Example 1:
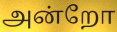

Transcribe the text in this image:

அன்றோ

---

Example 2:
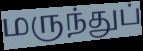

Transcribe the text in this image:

மருந்துப்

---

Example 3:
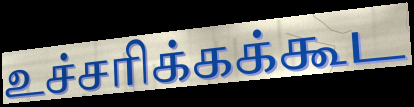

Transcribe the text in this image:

உச்சரிக்கக்கூட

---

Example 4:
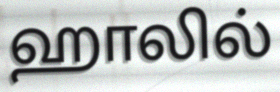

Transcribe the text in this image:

ஹாலில்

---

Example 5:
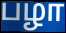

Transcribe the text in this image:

பழா